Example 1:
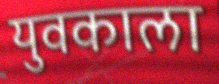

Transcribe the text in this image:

युवकाला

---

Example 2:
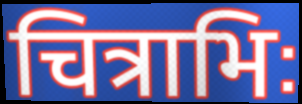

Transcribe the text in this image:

चित्राभिः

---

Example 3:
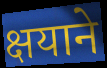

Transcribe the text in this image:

क्षयाने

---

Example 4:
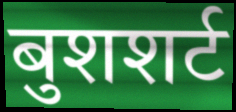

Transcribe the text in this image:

बुशशर्ट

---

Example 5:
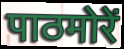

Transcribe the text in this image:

पाठमोरें